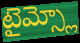
టైమ్స్లో